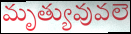
మృత్యువువలె